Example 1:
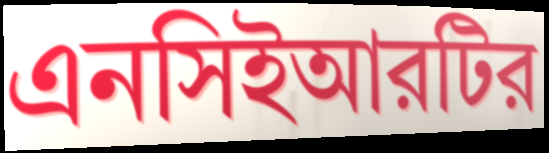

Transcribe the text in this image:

এনসিইআরটির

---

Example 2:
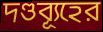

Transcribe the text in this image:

দণ্ডব্যূহের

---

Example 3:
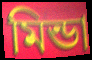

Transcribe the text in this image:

মিন্ডা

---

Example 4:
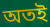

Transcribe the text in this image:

অতই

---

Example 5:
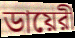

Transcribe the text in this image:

ডায়েরী